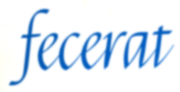
fecerat